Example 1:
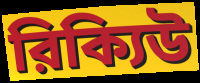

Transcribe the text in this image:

রিক্যিউ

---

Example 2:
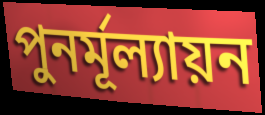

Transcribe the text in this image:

পুনর্মূল্যায়ন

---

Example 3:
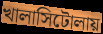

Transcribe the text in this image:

খালাসিটোলায়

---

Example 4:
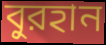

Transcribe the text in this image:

বুরহান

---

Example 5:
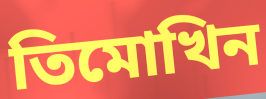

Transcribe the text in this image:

তিমোখিন